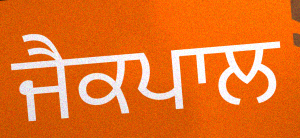
ਜੈਕਪਾਲ